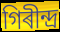
গিৰীন্দ্ৰ